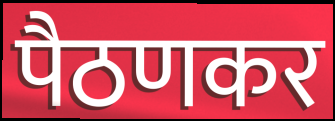
पैठणकर